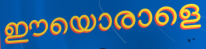
ഈയൊരാളെ